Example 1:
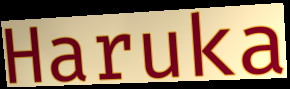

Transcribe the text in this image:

Haruka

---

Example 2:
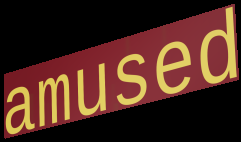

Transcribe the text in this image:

amused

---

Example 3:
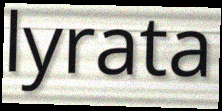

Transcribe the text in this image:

lyrata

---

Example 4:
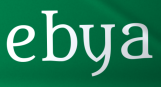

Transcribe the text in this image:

ebya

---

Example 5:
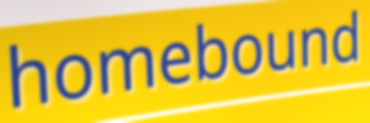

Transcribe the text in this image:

homebound